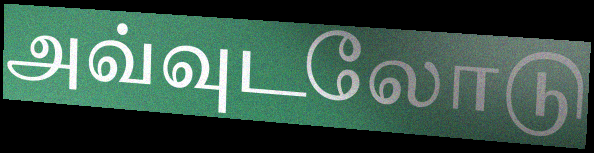
அவ்வுடலோடு